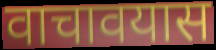
वाचावयास